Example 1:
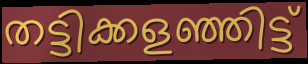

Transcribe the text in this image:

തട്ടിക്കളഞ്ഞിട്ട്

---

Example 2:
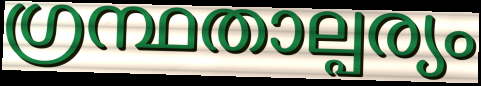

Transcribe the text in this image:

ഗ്രന്ഥതാല്പര്യം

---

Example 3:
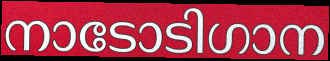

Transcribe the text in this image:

നാടോടിഗാന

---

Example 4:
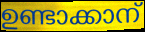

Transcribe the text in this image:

ഉണ്ടാക്കാന്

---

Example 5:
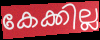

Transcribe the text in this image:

കേക്കില്ല